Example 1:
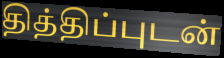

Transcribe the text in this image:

தித்திப்புடன்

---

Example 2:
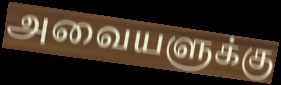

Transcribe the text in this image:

அவையளுக்கு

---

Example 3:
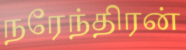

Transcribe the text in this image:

நரேந்திரன்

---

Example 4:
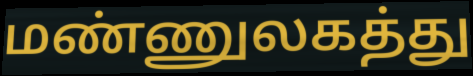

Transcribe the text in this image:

மண்ணுலகத்து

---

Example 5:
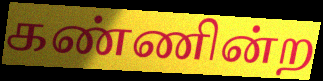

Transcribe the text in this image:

கண்ணின்ற